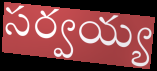
సర్వయ్య